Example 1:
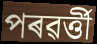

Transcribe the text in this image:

পৰৱৰ্ত্তী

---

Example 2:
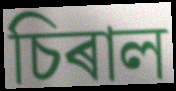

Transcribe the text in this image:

চিৰাল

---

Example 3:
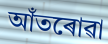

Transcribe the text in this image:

আঁতৰোৱা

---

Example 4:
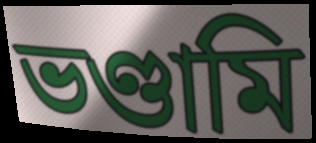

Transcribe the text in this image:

ভণ্ডামি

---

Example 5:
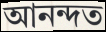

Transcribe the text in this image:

আনন্দত